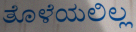
ತೊಳೆಯಲಿಲ್ಲ